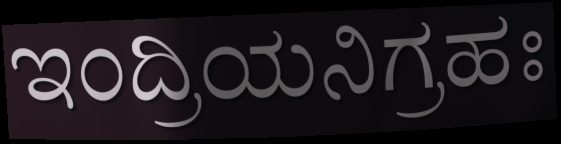
ಇಂದ್ರಿಯನಿಗ್ರಹಃ